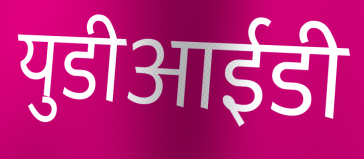
युडीआईडी